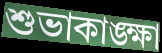
শুভাকাঙ্ক্ষা